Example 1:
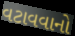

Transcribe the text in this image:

વટાવવાનો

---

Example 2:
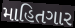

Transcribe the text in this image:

માહિતગાર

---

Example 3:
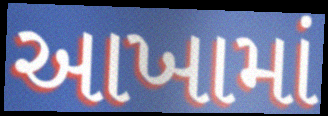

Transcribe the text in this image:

આખામાં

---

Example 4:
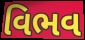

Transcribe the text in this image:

વિભવ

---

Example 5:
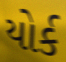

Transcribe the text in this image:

યોર્ક